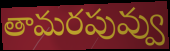
తామరపువ్వు